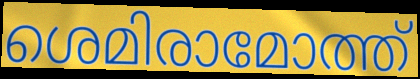
ശെമിരാമോത്ത്